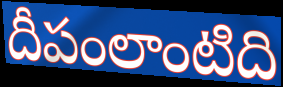
దీపంలాంటిది